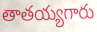
తాతయ్యగారు